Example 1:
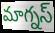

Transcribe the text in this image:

మాగ్నస్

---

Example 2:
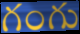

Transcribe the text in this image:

గంగు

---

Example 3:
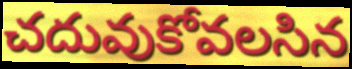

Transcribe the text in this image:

చదువుకోవలసిన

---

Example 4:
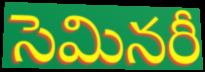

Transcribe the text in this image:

సెమినరీ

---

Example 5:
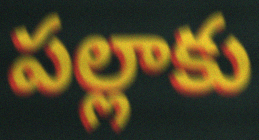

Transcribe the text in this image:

పల్లాకు